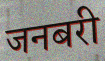
जनबरी